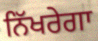
ਨਿੱਖਰੇਗਾ